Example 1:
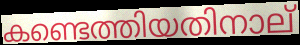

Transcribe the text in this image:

കണ്ടെത്തിയതിനാല്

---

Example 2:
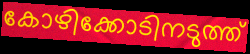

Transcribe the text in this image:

കോഴിക്കോടിനടുത്ത്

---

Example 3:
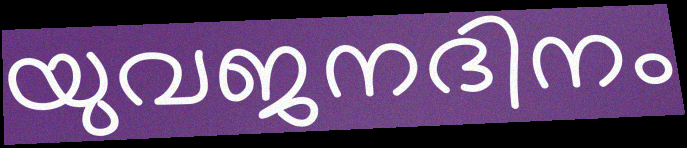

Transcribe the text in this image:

യുവജനദിനം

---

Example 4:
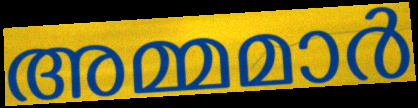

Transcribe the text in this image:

അമ്മമാർ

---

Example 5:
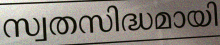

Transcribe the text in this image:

സ്വതസിദ്ധമായി